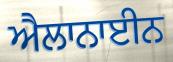
ਐਲਾਨਾਈਨ